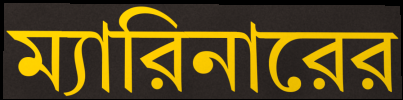
ম্যারিনারের